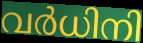
വർധിനി